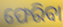
ଫେରିବା